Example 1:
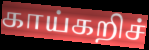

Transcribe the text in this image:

காய்கறிச்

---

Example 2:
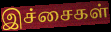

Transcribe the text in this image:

இச்சைகள்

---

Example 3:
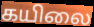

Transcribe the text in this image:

கயிலை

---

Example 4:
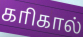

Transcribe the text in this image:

கரிகால்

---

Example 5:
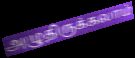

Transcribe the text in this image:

அழுதிருக்கலாம்